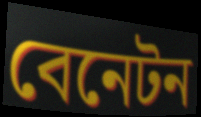
বেনেটন